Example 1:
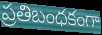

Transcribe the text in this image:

ప్రతిబంధకంగా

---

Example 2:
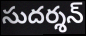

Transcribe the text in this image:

సుదర్శన్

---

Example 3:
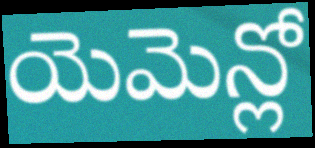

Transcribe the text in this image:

యెమెన్లో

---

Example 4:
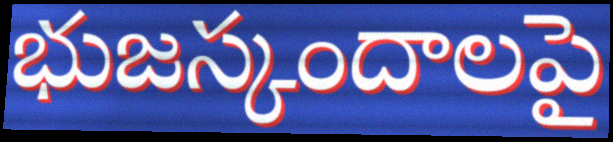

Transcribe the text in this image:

భుజస్కందాలపై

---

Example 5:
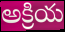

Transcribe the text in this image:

అక్రియ